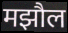
मझौल